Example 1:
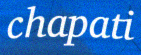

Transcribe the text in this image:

chapati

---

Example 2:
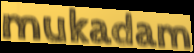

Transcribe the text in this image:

mukadam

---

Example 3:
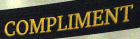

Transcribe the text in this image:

COMPLIMENT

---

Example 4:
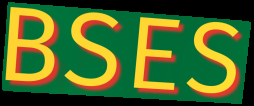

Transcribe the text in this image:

BSES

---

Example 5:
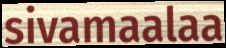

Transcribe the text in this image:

sivamaalaa